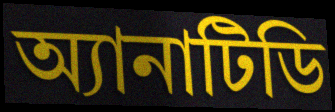
অ্যানাটিডি